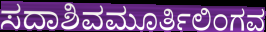
ಸದಾಶಿವಮೂರ್ತಿಲಿಂಗವ